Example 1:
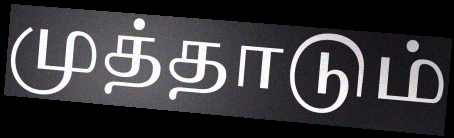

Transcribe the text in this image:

முத்தாடும்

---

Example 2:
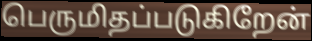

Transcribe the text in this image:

பெருமிதப்படுகிறேன்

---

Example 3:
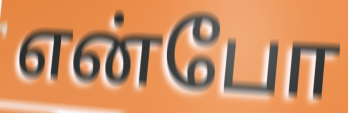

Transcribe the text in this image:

என்போ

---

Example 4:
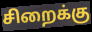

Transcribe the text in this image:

சிறைக்கு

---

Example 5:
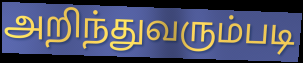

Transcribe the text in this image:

அறிந்துவரும்படி